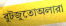
বুটজুতোঅলারা